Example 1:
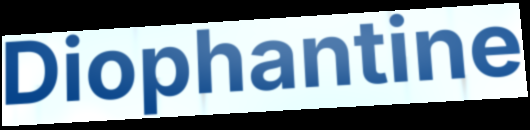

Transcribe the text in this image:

Diophantine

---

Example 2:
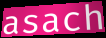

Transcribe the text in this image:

asach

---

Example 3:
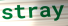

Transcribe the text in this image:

stray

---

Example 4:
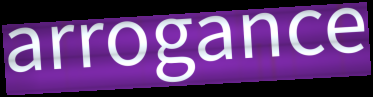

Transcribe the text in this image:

arrogance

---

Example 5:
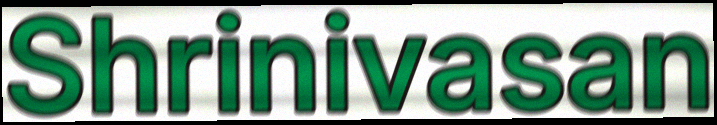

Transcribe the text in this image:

Shrinivasan